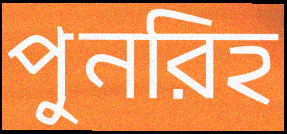
পুনরিহ